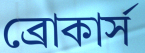
ব্রোকার্স